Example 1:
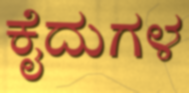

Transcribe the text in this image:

ಕೈದುಗಳ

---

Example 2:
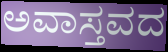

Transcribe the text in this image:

ಅವಾಸ್ತವದ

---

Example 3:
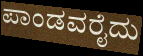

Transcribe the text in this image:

ಪಾಂಡವರೈದು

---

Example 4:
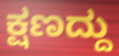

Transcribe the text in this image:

ಕ್ಷಣದ್ದು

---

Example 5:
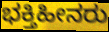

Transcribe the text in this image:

ಭಕ್ತಿಹೀನರು